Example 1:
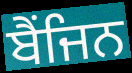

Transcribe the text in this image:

ਬੈਂਜਿਨ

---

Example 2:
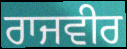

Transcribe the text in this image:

ਰਾਜਵੀਰ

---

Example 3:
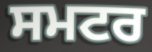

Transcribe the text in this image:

ਸਮਟਰ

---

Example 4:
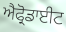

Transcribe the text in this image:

ਐਫ੍ਰੋਡਾਈਟ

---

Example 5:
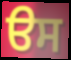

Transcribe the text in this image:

ੳਸ